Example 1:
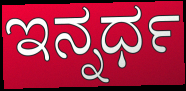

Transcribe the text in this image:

ಇನ್ನರ್ಧ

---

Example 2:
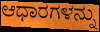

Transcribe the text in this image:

ಆಧಾರಗಳನ್ನು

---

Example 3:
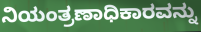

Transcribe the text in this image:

ನಿಯಂತ್ರಣಾಧಿಕಾರವನ್ನು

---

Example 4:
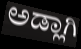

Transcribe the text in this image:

ಅಡ್ಲಾಗಿ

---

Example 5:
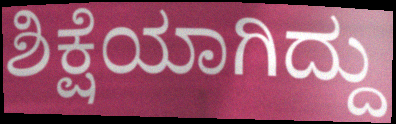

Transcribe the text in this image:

ಶಿಕ್ಷೆಯಾಗಿದ್ದು